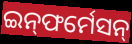
ଇନ୍‍ଫର୍ମେସନ୍